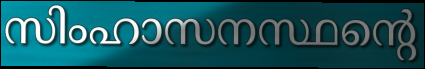
സിംഹാസനസ്ഥന്റെ